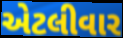
એટલીવાર